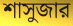
শাসুজার